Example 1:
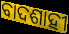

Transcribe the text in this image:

ବାଦଶାହୀ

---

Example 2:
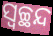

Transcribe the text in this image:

ସ୍ୱଚ୍ଛନ୍ଦ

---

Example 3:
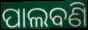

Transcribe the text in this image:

ପାଲବଣି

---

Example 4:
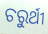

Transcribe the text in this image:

ଚରୁର୍ଥୀ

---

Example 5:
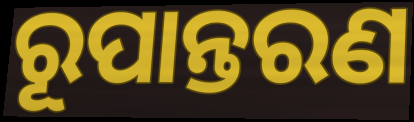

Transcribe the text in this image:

ରୂପାନ୍ତରଣ